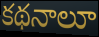
కథనాలూ